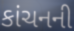
કાંચનની